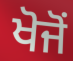
ਖੋਜੋਂ